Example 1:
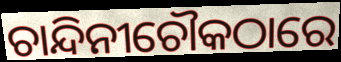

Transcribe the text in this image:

ଚାନ୍ଦିନୀଚୌକଠାରେ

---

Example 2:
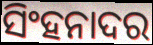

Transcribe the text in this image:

ସିଂହନାଦର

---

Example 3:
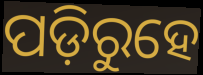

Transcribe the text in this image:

ପଡ଼ିରୁହେ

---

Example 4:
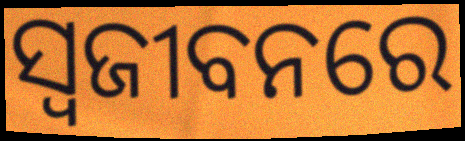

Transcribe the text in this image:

ସ୍ଵଜୀବନରେ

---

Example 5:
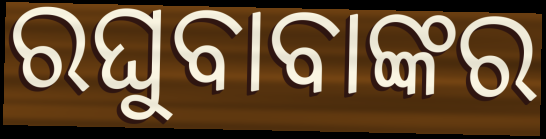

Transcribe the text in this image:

ରଘୁବାବାଙ୍କର